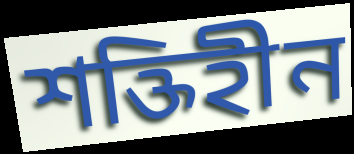
শক্তিহীন